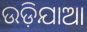
ଉଡ଼ିଯାଆ